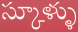
స్కూళ్ళు